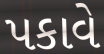
પકાવે